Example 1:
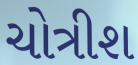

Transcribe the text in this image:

ચોત્રીશ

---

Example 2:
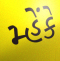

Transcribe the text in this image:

મ્હેંકે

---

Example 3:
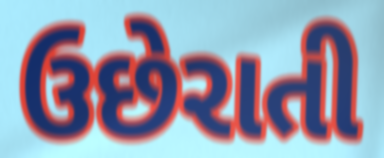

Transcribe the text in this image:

ઉછેરાતી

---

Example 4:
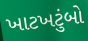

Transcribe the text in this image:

ખાટખટુંબો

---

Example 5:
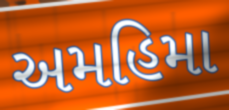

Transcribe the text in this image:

અમહિમા